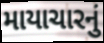
માયાચારનું